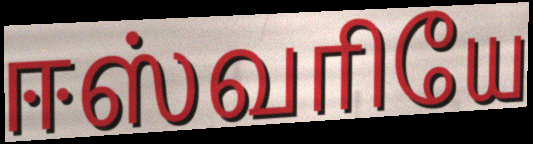
ஈஸ்வரியே